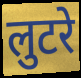
लुटरे